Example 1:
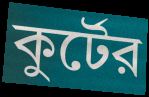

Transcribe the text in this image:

কুর্টের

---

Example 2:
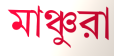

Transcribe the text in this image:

মাঞ্চুরা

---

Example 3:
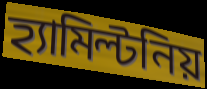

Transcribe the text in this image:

হ্যামিল্টনিয়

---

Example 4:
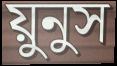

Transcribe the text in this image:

য়ুনুস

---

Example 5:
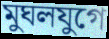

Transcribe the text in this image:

মুঘলযুগে